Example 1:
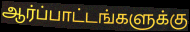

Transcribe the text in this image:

ஆர்ப்பாட்டங்களுக்கு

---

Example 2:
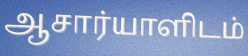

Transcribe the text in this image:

ஆசார்யாளிடம்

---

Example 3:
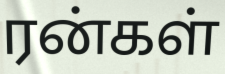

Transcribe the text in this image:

ரன்கள்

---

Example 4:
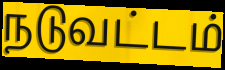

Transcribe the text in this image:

நடுவட்டம்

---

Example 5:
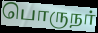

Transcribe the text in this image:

பொருநர்